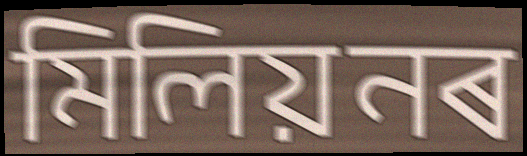
মিলিয়নৰ